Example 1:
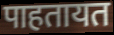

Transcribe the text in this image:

पाहतायत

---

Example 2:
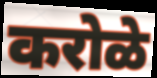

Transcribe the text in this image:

करोळे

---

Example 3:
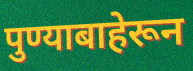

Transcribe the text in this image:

पुण्याबाहेरून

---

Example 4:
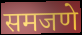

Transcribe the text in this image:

समजणे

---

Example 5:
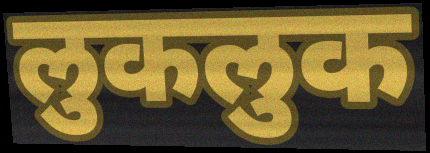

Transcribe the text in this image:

लुकलुक